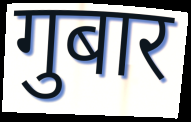
गुबार